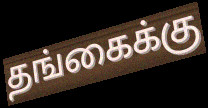
தங்கைக்கு